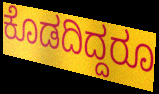
ಕೊಡದಿದ್ದರೂ